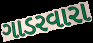
ગાડરવારા